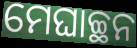
ମେଘାଚ୍ଛନ